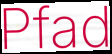
Pfad